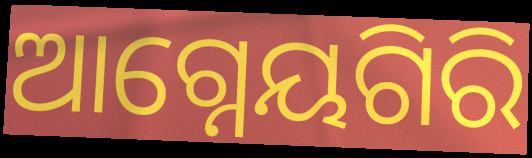
ଆଗ୍ନେୟଗିରି